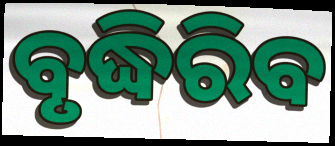
ବୃଦ୍ଧିରିବ